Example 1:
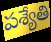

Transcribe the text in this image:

పశ్యేతి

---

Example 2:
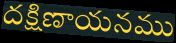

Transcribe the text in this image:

దక్షిణాయనము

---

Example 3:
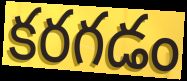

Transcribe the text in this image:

కరగడం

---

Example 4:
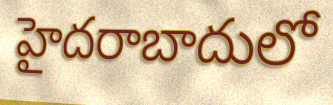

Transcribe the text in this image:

హైదరాబాదులో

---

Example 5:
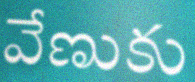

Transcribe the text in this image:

వేణుకు